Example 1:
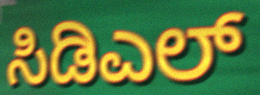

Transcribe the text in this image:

ಸಿಡಿಎಲ್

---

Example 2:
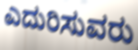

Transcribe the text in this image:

ಎದುರಿಸುವರು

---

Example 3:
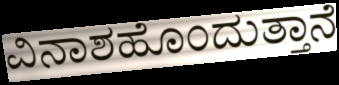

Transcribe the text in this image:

ವಿನಾಶಹೊಂದುತ್ತಾನೆ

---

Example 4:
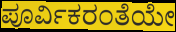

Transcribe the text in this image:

ಪೂರ್ವಿಕರಂತೆಯೇ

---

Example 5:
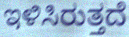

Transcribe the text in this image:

ಇಳಿಸಿರುತ್ತದೆ